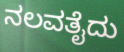
ನಲವತೈದು